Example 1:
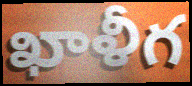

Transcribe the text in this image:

ఖాళీగ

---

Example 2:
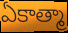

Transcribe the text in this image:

ఏకాత్మా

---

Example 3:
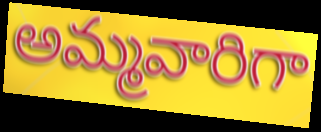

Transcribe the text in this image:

అమ్మవారిగా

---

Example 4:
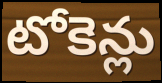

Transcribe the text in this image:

టోకెన్లు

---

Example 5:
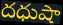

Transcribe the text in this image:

దధుషా